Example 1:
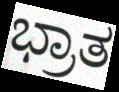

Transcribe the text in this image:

ಭ್ರಾತ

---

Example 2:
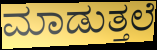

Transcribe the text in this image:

ಮಾಡುತ್ತಲೆ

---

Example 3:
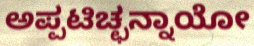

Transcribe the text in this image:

ಅಪ್ಪಟಿಚ್ಛನ್ನಾಯೋ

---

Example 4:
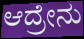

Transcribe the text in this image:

ಆದ್ರೇನು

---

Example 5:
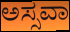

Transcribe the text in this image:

ಅಸ್ಸವಾ